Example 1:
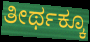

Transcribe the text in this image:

ತೀರ್ಥಕ್ಕೂ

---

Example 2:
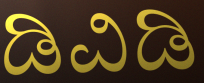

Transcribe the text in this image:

ಡಿವಿಡಿ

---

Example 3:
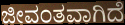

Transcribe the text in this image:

ಜೀವಂತವಾಗಿದೆ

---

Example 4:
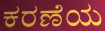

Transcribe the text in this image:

ಕರಣೆಯ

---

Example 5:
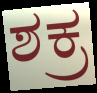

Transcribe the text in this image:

ಶಕ್ರ